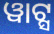
ୱାଟ୍ସ